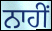
ਨਾਹੀਂ